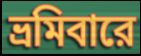
ভ্রমিবারে